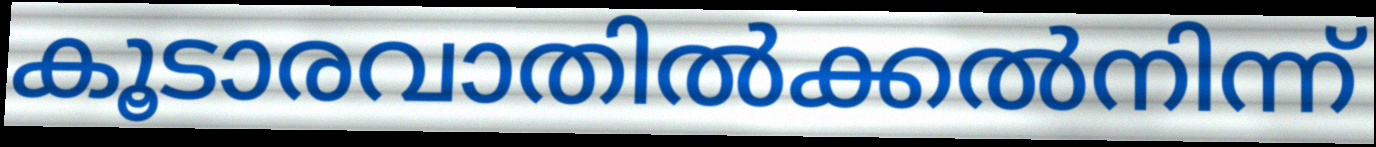
കൂടാരവാതിൽക്കൽനിന്ന്